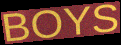
BOYS